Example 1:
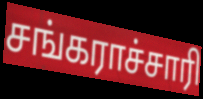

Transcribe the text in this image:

சங்கராச்சாரி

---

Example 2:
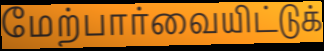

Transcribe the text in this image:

மேற்பார்வையிட்டுக்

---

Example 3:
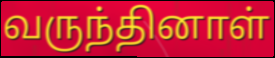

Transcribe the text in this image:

வருந்தினாள்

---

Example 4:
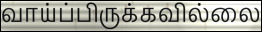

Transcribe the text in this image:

வாய்ப்பிருக்கவில்லை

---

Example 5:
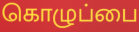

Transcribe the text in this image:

கொழுப்பை